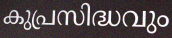
കുപ്രസിദ്ധവും